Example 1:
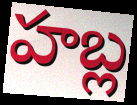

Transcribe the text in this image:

హబ్ల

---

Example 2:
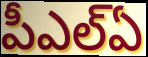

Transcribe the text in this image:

పీఎల్ఏ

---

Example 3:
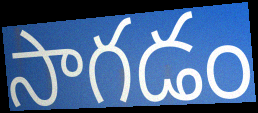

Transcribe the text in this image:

సాగడం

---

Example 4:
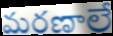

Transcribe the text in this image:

మరణాలే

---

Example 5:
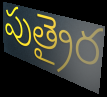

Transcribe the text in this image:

పుత్రైర